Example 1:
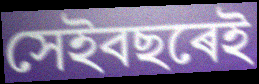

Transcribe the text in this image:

সেইবছৰেই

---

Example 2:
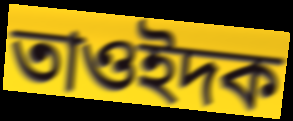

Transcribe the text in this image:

তাওইদক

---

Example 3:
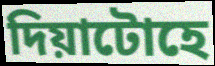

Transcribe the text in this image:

দিয়াটোহে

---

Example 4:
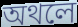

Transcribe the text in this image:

অথলে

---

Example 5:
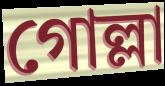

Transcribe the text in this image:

গোল্লা